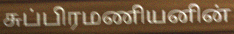
சுப்பிரமணியனின்